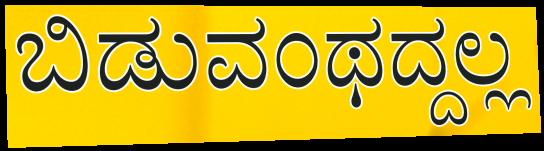
ಬಿಡುವಂಥದ್ದಲ್ಲ